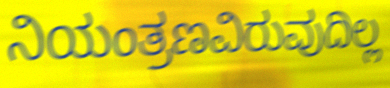
ನಿಯಂತ್ರಣವಿರುವುದಿಲ್ಲ